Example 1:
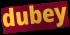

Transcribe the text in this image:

dubey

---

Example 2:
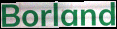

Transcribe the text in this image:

Borland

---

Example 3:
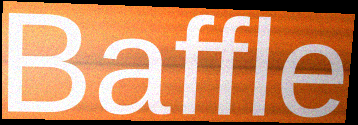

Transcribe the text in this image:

Baffle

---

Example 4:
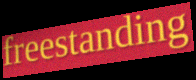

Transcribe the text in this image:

freestanding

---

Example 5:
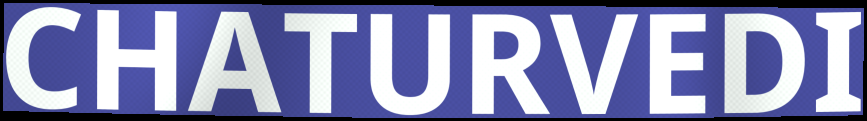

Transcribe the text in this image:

CHATURVEDI